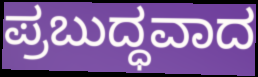
ಪ್ರಬುದ್ಧವಾದ